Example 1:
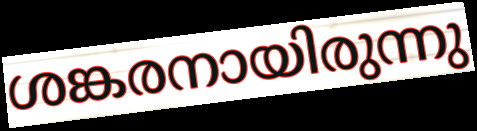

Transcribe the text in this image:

ശങ്കരനായിരുന്നു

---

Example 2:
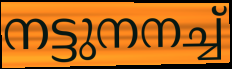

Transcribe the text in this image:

നട്ടുനനച്ച്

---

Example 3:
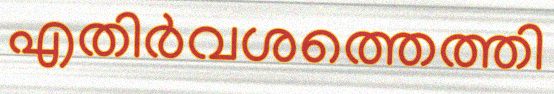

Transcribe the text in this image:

എതിർവശത്തെത്തി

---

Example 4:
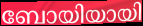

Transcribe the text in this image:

ബോയിയായി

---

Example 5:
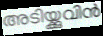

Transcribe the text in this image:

അടിയ്ക്കുവിൻ